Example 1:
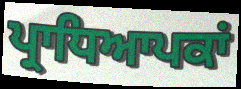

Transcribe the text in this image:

ਪ੍ਰਾਧਿਆਪਕਾਂ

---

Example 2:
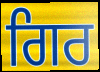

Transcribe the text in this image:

ਗਿਰ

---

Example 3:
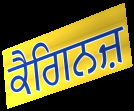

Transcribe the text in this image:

ਕੈਗਿਨਜ਼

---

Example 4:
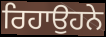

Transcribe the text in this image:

ਰਿਹਾਉਹਨੇ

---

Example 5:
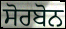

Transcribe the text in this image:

ਸੋਰਬੋਨ